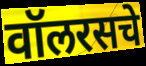
वॉलरसचे